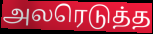
அலரெடுத்த